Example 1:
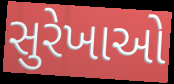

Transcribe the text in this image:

સુરેખાઓ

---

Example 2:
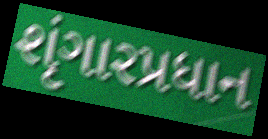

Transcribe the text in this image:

શૃંગારપ્રધાન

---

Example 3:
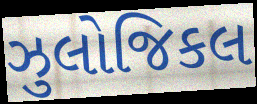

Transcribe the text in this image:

ઝુલોજિકલ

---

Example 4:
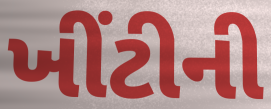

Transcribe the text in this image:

ખીંટીની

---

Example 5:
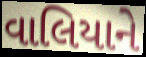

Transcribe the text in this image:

વાલિયાને